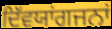
ਦਿੱਵਯਾਂਗਜਨਾਂ